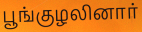
பூங்குழலினார்